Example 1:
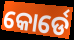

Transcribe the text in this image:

କୋର୍ଡେ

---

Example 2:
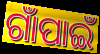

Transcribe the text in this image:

ଗାଁପାଇଁ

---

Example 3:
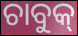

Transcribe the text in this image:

ଚାବୁକ୍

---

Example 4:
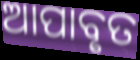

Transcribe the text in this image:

ଆପାବୃତ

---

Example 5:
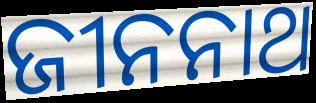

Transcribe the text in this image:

ଜୀନନାଥ